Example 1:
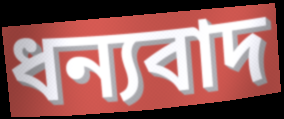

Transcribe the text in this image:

ধন্যবাদ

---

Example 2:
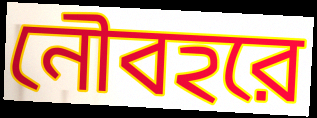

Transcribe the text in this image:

নৌবহরে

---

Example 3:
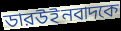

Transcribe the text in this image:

ডারউইনবাদকে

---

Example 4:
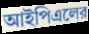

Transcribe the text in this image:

আইপিএলের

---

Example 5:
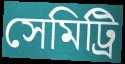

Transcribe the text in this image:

সেমিট্রি